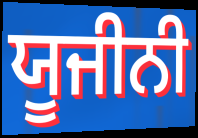
ਯੂਜੀਨੀ